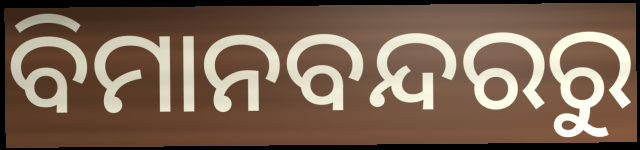
ବିମାନବନ୍ଦରରୁ